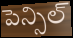
పెన్సిల్